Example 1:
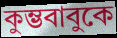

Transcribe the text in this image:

কুম্ভবাবুকে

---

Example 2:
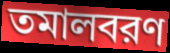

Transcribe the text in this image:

তমালবরণ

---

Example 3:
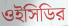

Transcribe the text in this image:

ওইসিডির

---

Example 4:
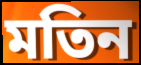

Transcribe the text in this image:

মতিন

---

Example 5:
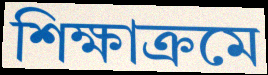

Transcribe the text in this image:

শিক্ষাক্রমে